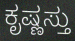
ಕೃಷ್ಣಸ್ತು